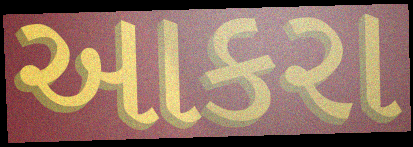
આકરા